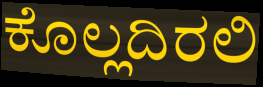
ಕೊಲ್ಲದಿರಲಿ